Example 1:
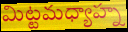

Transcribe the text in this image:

మిట్టమధ్యాహ్న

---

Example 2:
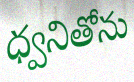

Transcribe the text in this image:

ధ్వనితోను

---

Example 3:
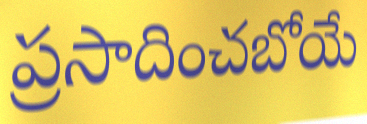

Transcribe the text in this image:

ప్రసాదించబోయే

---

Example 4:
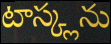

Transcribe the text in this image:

టాస్క్లను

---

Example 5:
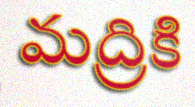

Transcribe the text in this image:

మద్రికి